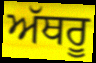
ਅੱਥਰੂ